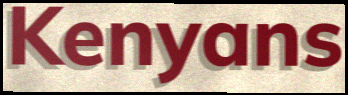
Kenyans